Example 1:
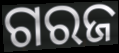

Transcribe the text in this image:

ଗରଜ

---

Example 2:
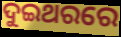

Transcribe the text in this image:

ଦୁଇଥରରେ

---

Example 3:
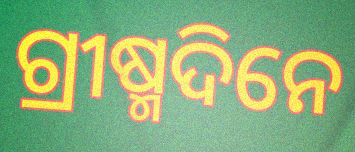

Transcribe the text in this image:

ଗ୍ରୀଷ୍ମଦିନେ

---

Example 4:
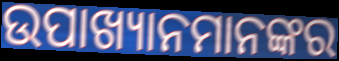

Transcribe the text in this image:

ଉପାଖ୍ୟାନମାନଙ୍କର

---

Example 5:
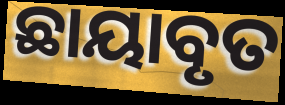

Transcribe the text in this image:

ଛାୟାବୃତ